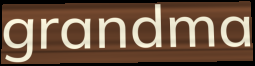
grandma